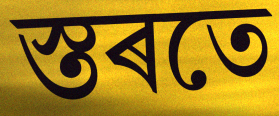
স্তৰতে